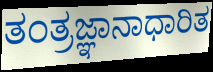
ತಂತ್ರಜ್ಞಾನಾಧಾರಿತ